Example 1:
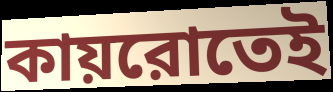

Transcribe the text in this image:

কায়রোতেই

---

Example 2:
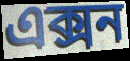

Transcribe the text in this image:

এক্সন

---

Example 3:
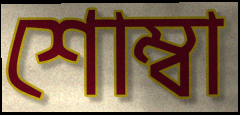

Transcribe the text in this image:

শোম্বা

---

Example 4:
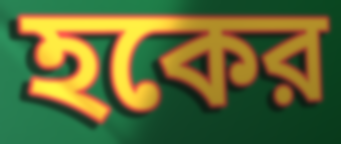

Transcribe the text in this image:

হকের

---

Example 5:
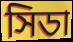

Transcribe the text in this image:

সিডা